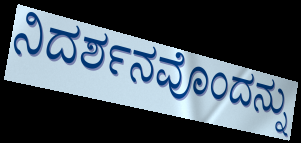
ನಿದರ್ಶನವೊಂದನ್ನು